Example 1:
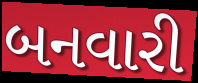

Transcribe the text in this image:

બનવારી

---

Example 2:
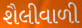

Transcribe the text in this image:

શૈલીવાળી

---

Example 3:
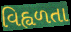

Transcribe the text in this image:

વિહ્વળતા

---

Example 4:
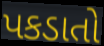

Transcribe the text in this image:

પકડાતો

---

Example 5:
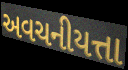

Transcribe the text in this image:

અવચનીયત્તા